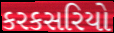
કરકસરિયો